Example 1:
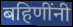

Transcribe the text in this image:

बहिणींनी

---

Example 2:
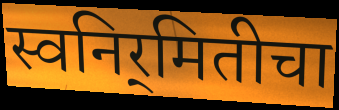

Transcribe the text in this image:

स्वनिर्मितीचा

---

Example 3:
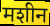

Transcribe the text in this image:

मशीन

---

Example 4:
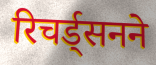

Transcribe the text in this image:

रिचर्ड्सनने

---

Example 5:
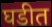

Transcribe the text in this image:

घडीत